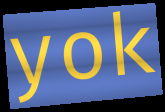
yok